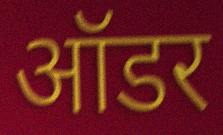
ऑडर